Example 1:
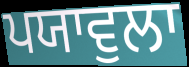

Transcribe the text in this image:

ਪਯਾਵੁਲਾ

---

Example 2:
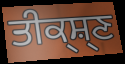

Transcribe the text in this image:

ਤੀਕ੍ਸ਼੍ਣ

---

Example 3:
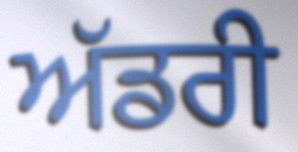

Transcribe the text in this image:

ਅੱਡਰੀ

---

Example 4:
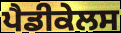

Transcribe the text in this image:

ਪੈਡੀਕੇਲਸ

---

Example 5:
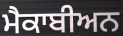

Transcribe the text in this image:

ਮੈਕਾਬੀਅਨ